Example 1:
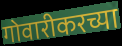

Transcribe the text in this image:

गोवारीकरच्या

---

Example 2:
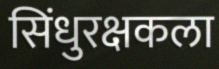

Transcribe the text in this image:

सिंधुरक्षकला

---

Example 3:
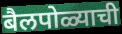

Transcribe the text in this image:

बैलपोळ्याची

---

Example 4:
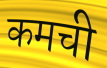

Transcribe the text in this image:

कमची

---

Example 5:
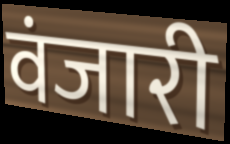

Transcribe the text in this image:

वंजारी